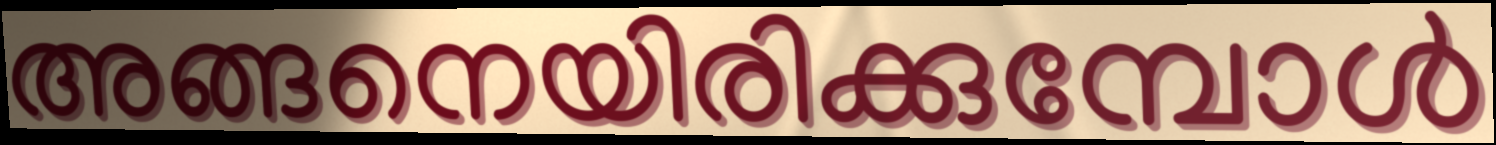
അങ്ങനെയിരിക്കുമ്പോൾ